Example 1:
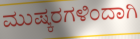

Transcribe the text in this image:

ಮುಷ್ಕರಗಳಿಂದಾಗಿ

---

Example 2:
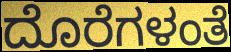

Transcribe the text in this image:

ದೊರೆಗಳಂತೆ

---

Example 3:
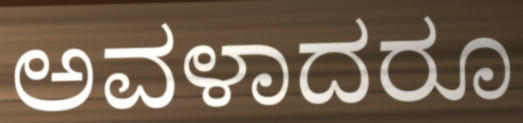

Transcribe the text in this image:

ಅವಳಾದರೂ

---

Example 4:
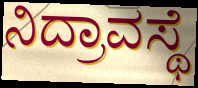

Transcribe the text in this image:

ನಿದ್ರಾವಸ್ಥೆ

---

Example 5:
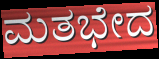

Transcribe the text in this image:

ಮತಭೇದ